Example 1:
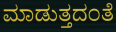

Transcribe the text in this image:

ಮಾಡುತ್ತದಂತೆ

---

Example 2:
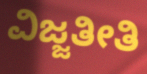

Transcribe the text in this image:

ವಿಜ್ಜತೀತಿ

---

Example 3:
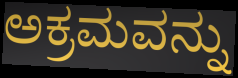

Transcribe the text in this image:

ಅಕ್ರಮವನ್ನು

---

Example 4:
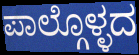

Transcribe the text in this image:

ಪಾಲ್ಗೊಳ್ಳದ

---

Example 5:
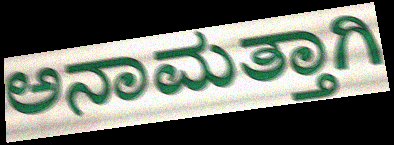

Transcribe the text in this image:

ಅನಾಮತ್ತಾಗಿ